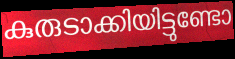
കുരുടാക്കിയിട്ടുണ്ടോ